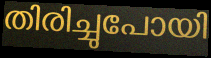
തിരിച്ചുപോയി